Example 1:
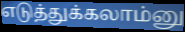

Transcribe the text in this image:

எடுத்துக்கலாம்னு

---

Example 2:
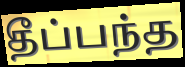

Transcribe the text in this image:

தீப்பந்த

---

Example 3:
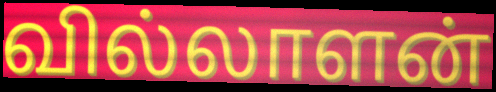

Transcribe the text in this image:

வில்லாளன்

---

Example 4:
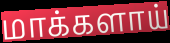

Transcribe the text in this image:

மாக்களாய்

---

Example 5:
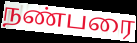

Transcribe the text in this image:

நண்பரை